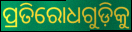
ପ୍ରତିରୋଧଗୁଡ଼ିକୁ